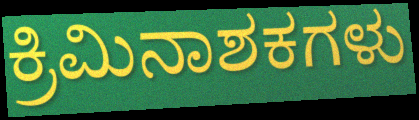
ಕ್ರಿಮಿನಾಶಕಗಳು